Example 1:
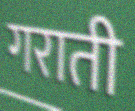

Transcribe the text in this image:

गराती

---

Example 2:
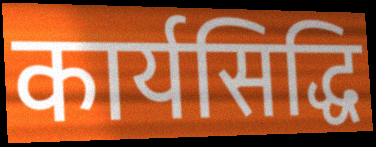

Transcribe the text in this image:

कार्यसिद्धि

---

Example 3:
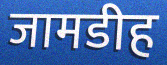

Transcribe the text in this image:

जामडीह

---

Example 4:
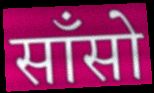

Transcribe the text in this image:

साँसो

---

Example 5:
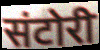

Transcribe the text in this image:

संटोरी